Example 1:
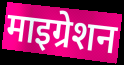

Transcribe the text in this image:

माइग्रेशन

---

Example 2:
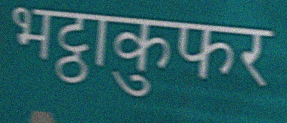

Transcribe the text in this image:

भट्ठाकुफर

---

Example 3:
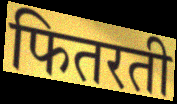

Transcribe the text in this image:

फितरती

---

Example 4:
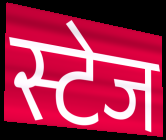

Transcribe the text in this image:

स्‍टेज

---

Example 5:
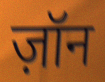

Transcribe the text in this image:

ज़ॉन